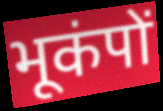
भूकंपों